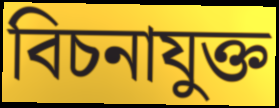
বিচনাযুক্ত